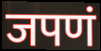
जपणं